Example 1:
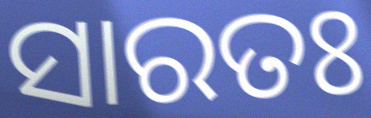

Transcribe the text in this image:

ସାରତଃ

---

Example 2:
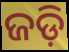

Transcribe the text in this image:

ଜଡ଼ି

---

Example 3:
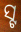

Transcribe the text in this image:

ସ୍ଟ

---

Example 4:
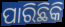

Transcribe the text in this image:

ପାରିଛିକି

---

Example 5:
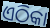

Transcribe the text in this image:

ଏଠିକା